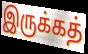
இருக்கத்